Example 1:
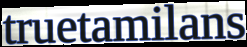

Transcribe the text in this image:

truetamilans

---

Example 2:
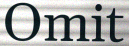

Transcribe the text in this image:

Omit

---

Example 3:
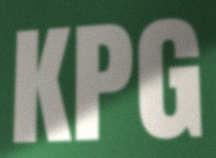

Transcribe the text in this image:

KPG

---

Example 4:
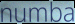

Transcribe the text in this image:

numba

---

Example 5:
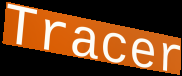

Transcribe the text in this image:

Tracer